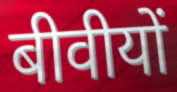
बीवीयों